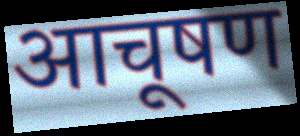
आचूषण